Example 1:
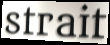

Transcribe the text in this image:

strait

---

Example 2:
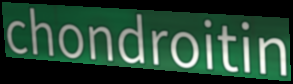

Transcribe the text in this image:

chondroitin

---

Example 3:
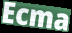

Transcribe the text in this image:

Ecma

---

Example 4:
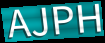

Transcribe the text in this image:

AJPH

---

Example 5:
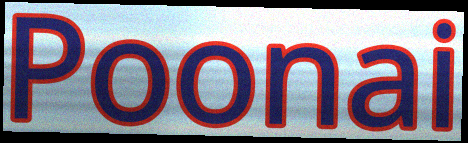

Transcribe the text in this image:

Poonai